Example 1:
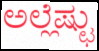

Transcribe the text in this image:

ಅಲ್ಲೆಷ್ಟು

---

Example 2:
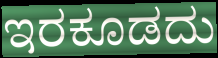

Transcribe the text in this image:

ಇರಕೂಡದು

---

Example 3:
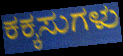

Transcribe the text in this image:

ಕಕ್ಕಸುಗಳು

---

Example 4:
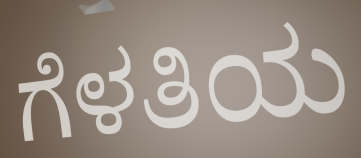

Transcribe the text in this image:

ಗೆಳತಿಯ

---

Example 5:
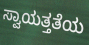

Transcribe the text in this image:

ಸ್ವಾಯತ್ತತೆಯ